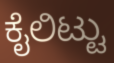
ಕೈಲಿಟ್ಟು